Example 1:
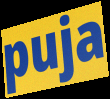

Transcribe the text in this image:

puja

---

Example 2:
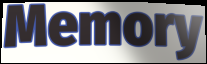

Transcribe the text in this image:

Memory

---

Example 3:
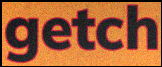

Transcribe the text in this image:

getch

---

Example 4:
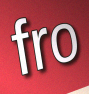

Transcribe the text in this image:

fro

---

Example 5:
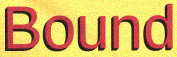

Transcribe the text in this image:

Bound